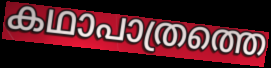
കഥാപാത്രത്തെ